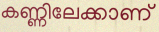
കണ്ണിലേക്കാണ്